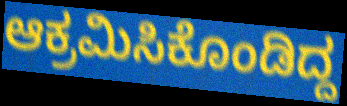
ಆಕ್ರಮಿಸಿಕೊಂಡಿದ್ದ